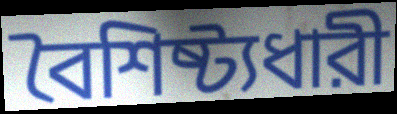
বৈশিষ্ট্যধারী